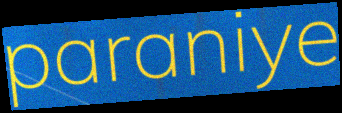
paraniye